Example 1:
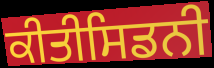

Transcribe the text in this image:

ਕੀਤੀਸਿਡਨੀ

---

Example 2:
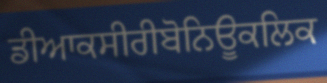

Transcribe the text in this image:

ਡੀਆਕਸੀਰੀਬੋਨਿਊਕਲਿਕ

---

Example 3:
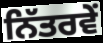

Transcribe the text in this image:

ਨਿੱਤਰਵੇਂ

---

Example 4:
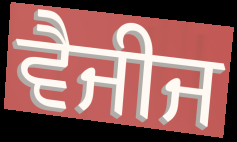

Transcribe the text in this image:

ਵੈਜੀਜ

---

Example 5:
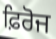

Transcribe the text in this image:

ਫ਼ਿਰੋਜ